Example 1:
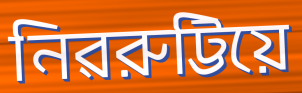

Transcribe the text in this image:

নিৱৰুট্টিয়ে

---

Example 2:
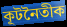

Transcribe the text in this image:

কূটনৈতীক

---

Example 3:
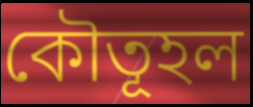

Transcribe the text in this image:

কৌতূহল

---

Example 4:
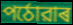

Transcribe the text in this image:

পঠোৱাৰ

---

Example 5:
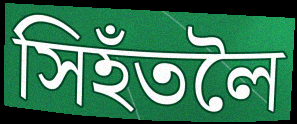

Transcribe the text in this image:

সিহঁতলৈ